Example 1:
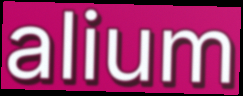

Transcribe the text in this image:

alium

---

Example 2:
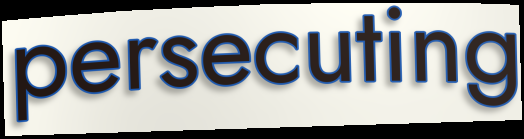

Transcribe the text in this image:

persecuting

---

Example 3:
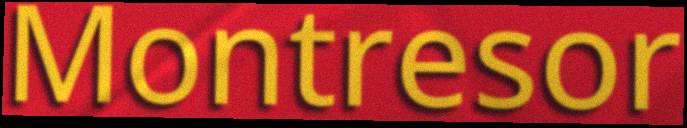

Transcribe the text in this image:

Montresor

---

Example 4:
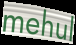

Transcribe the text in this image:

mehul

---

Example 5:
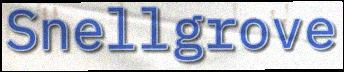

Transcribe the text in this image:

Snellgrove